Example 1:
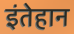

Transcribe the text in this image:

इंतेहान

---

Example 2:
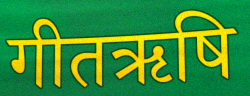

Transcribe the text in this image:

गीतऋषि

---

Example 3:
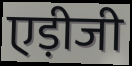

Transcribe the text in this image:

एड़ीजी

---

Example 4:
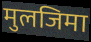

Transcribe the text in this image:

मुलजिमा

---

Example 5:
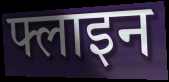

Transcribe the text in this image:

फ्लाइन